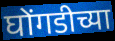
घोंगडीच्या